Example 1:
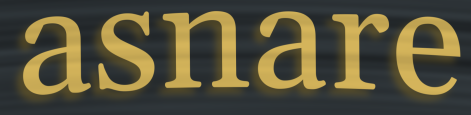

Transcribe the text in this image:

asnare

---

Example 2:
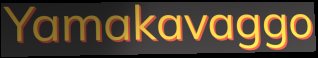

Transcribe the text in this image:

Yamakavaggo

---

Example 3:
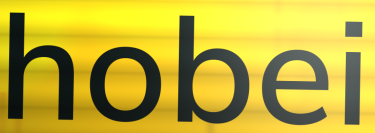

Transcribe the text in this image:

hobei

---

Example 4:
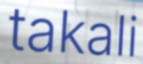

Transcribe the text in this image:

takali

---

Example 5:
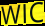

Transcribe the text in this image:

WIC